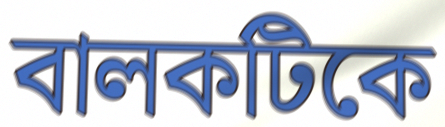
বালকটিকে